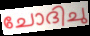
ചോദിചു